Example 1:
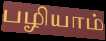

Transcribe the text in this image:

பழியாம்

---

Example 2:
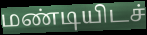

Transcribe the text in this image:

மண்டியிடச்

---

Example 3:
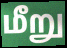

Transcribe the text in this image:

மீறு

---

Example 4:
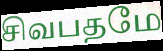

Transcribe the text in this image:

சிவபதமே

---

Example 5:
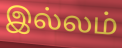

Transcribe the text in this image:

இல்லம்